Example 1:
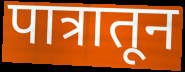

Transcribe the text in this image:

पात्रातून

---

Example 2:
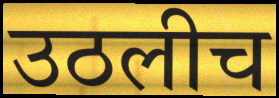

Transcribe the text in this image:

उठलीच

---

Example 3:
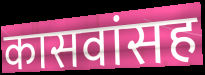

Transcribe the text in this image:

कासवांसह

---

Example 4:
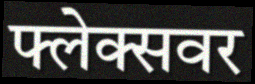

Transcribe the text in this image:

फ्लेक्सवर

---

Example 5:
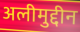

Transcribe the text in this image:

अलीमुद्दीन